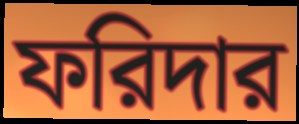
ফরিদার